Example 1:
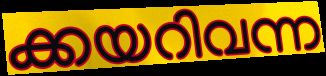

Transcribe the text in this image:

ക്കയറിവന്ന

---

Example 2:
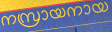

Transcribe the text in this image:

നസ്രായനായ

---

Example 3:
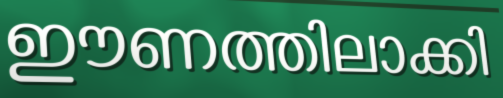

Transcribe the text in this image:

ഈണത്തിലാക്കി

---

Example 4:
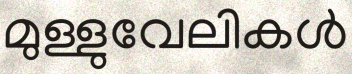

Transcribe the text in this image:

മുള്ളുവേലികൾ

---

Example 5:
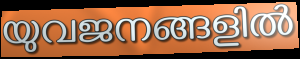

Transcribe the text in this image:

യുവജനങ്ങളിൽ